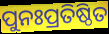
ପୁନଃପ୍ରତିଷ୍ଠିତ